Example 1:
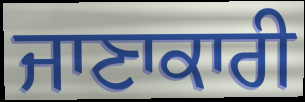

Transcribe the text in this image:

ਜਾਣਾਕਾਰੀ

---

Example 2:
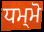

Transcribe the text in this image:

ਧਮ੍ਮੋ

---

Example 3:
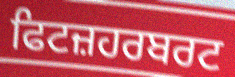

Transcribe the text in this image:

ਫਿਟਜ਼ਹਰਬਰਟ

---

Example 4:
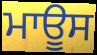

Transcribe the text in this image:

ਮਾਊਸ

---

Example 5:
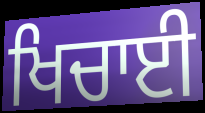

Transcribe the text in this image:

ਖਿਚਾਈ